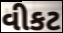
વીકટ